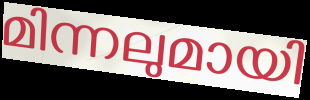
മിന്നലുമായി